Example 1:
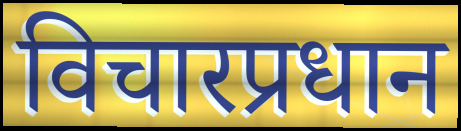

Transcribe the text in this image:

विचारप्रधान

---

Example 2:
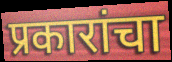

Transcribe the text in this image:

प्रकारांचा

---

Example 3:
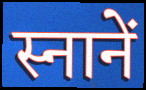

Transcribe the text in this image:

स्नानें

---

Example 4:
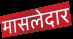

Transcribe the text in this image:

मासलेदार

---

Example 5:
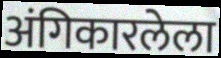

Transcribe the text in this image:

अंगिकारलेला